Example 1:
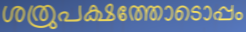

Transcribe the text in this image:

ശത്രുപക്ഷത്തോടൊപ്പം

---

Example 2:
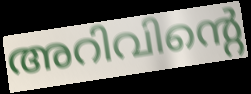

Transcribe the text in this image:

അറിവിന്റെ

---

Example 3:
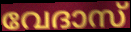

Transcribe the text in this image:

വേദാസ്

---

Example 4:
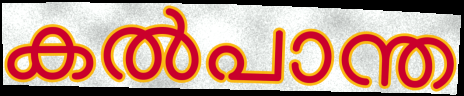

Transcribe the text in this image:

കൽപാന്ത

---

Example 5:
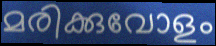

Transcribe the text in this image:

മരിക്കുവോളം